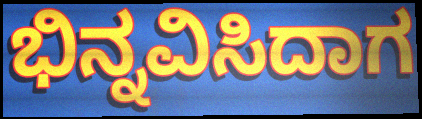
ಭಿನ್ನವಿಸಿದಾಗ